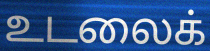
உடலைக்